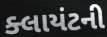
ક્લાયંટની